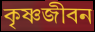
কৃষ্ণজীবন